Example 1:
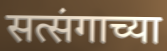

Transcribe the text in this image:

सत्संगाच्या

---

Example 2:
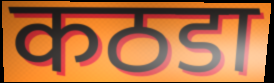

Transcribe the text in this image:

कठडा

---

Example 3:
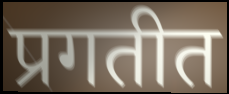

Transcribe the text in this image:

प्रगतीत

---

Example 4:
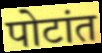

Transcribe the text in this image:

पोटांत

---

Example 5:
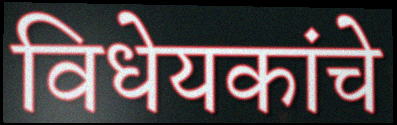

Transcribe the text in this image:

विधेयकांचे